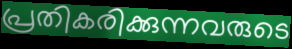
പ്രതികരിക്കുന്നവരുടെ